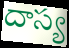
దాస్య